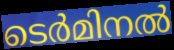
ടെർമിനൽ